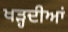
ਖੜ੍ਹਦੀਆਂ